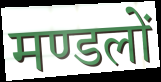
मण्डलों